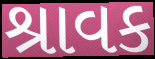
શ્રાવક